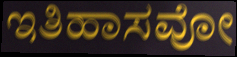
ಇತಿಹಾಸವೋ